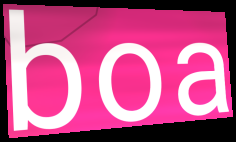
boa